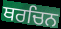
ਥਰਚਿਨ